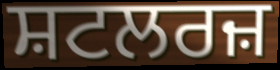
ਸ਼ਟਲਰਜ਼